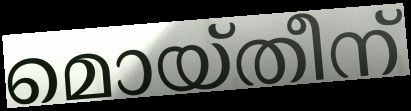
മൊയ്തീന്